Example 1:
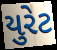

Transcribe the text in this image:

યુરેટ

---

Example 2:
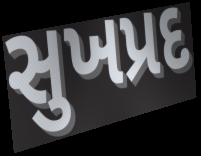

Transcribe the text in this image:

સુખપ્રદ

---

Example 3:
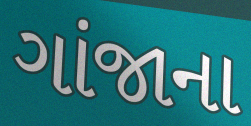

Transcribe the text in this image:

ગાંજાના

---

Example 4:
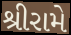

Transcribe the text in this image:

શ્રીરામે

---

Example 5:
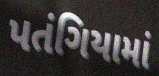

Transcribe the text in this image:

પતંગિયામાં